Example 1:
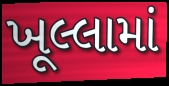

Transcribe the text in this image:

ખૂલ્લામાં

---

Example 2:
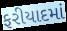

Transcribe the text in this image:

ફરીયાદમાં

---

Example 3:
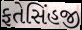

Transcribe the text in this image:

ફતેસિંહજી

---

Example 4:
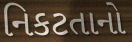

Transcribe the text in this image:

નિકટતાનો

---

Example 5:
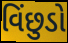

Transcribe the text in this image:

વિંછુડો